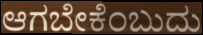
ಆಗಬೇಕೆಂಬುದು